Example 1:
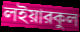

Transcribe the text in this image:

লইয়ারকুল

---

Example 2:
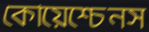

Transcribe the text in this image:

কোয়েশ্চেনস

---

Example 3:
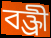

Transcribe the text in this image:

বক্ত্রী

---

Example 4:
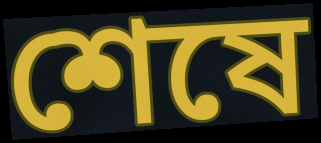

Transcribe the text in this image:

শেষে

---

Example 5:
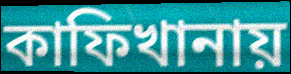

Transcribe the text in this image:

কাফিখানায়